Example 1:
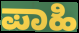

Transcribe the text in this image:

ಪಾಹಿ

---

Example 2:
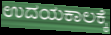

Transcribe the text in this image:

ಉದಯಕಾಲಕ್ಕೆ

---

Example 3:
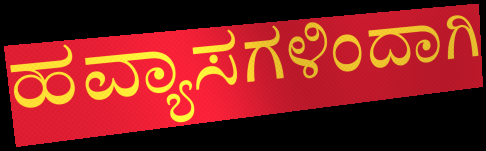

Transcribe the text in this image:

ಹವ್ಯಾಸಗಳಿಂದಾಗಿ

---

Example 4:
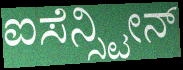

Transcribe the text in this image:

ಐಸೆನ್ಸ್ಟೀನ್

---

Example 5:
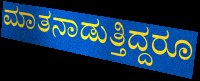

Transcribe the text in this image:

ಮಾತನಾಡುತ್ತಿದ್ದರೂ